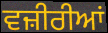
ਵਜ਼ੀਰੀਆਂ